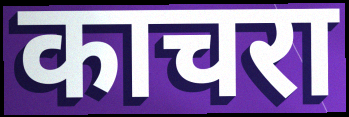
काचरा